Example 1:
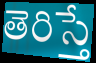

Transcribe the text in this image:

తెరిస్తే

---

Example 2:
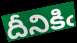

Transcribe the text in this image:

దీనికిఁ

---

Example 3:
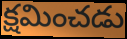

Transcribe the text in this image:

క్షమించడు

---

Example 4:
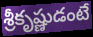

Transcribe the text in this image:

శ్రీకృష్ణుడంటే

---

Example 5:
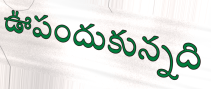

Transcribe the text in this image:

ఊపందుకున్నది